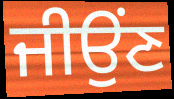
ਜੀਉਂਣ